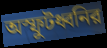
অস্ফুটধ্বনির